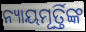
ନ୍ୟାୟମୂର୍ତ୍ତିଙ୍କ